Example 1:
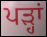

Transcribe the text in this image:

ਪੜ੍ਹਾਂ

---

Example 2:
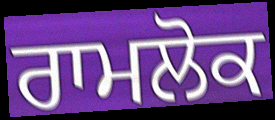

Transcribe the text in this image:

ਰਾਮਲੋਕ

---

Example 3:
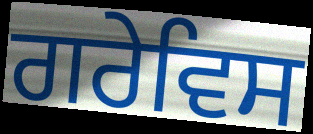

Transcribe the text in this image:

ਗਰੇਵਿਸ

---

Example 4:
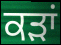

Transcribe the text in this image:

ਕੜਾਂ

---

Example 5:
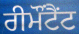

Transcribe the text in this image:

ਰੀਮੌਂਟੈਂਟ